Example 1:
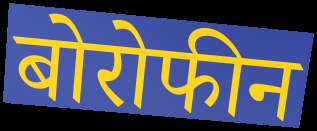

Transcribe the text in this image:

बोरोफीन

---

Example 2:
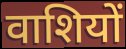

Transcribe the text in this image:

वाशियों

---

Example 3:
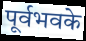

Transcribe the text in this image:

पूर्वभवके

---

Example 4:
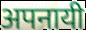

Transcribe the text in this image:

अपनायी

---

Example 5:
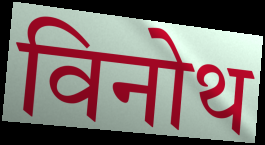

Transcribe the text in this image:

विनोथ